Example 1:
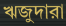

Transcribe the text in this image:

ঋজুদারা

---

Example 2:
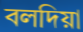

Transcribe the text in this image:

বলদিয়া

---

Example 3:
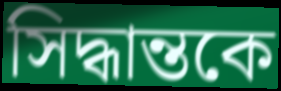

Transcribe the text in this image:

সিদ্ধান্তকে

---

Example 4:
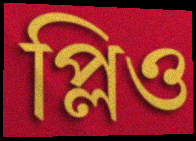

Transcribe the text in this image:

প্লিও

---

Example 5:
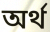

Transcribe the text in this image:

অর্থ